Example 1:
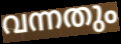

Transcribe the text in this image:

വന്നതും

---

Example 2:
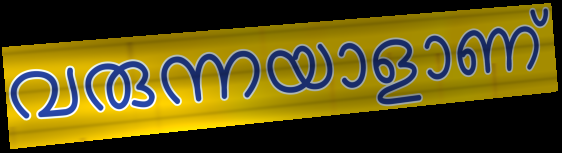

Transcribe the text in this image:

വരുന്നയാളാണ്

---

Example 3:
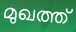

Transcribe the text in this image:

മുഖത്ത്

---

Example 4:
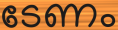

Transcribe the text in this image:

ടേണം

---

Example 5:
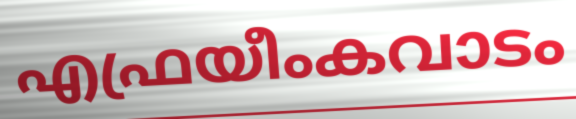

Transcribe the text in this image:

എഫ്രയീംകവാടം